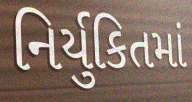
નિર્યુકિતમાં